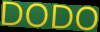
DODO